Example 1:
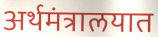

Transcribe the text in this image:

अर्थमंत्रालयात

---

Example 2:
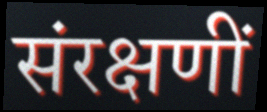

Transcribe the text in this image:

संरक्षणीं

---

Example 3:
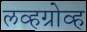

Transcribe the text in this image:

लव्हग्रोव्ह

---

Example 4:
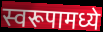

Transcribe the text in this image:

स्वरूपामध्ये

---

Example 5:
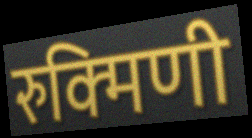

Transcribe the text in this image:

रुक्‍मिणी